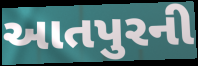
આતપુરની